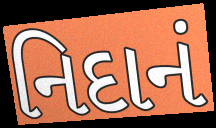
નિદાનં